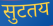
सुटतय